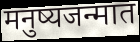
मनुष्यजन्मात